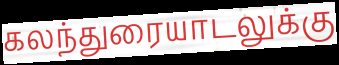
கலந்துரையாடலுக்கு